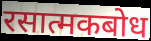
रसात्मकबोध